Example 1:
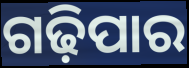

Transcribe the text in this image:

ଗଢ଼ିପାର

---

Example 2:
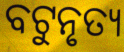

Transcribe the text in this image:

ବଟୁନୃତ୍ୟ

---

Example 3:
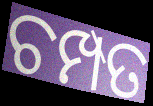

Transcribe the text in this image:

ଚମ୍ପତ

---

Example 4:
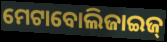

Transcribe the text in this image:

ମେଟାବୋଲିଜାଇଜ୍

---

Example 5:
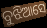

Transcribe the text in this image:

ବୁଝିଆସେ